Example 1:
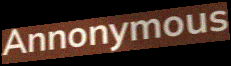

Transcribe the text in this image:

Annonymous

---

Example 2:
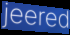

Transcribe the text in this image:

jeered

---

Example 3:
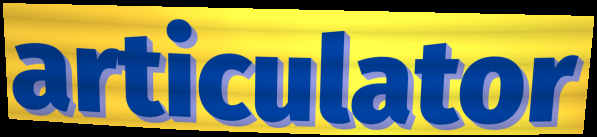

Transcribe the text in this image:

articulator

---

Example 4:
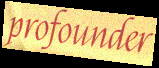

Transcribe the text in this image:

profounder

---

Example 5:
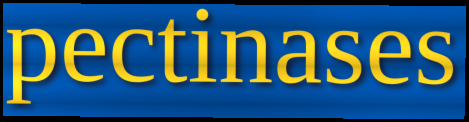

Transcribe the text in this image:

pectinases